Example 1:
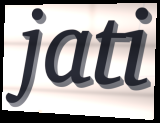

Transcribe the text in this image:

jati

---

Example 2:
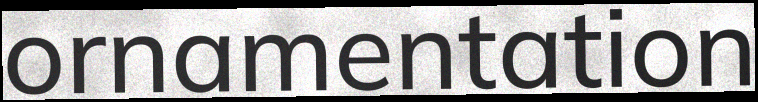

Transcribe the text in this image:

ornamentation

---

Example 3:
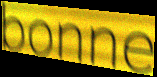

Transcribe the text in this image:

bonne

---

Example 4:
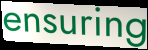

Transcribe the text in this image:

ensuring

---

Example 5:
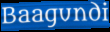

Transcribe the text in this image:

Baagundi